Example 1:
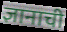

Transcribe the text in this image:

ज्ञानाची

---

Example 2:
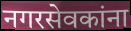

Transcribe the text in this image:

नगरसेवकांना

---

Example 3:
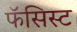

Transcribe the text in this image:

फॅसिस्ट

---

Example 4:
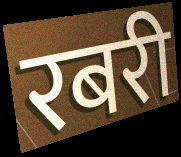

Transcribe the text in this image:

रबरी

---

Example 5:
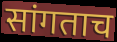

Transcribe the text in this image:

सांगताच